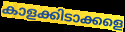
കാളക്കിടാക്കളെ